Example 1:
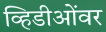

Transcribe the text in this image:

व्हिडीओंवर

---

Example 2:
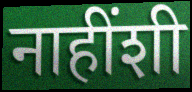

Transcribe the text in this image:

नाहींशी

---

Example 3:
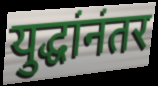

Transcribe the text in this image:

युद्धांनंतर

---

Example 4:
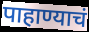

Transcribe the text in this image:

पाहाण्याचं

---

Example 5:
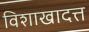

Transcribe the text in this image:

विशाखादत्त